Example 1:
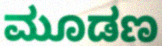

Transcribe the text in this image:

ಮೂಡಣ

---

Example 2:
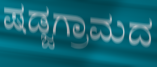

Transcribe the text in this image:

ಷಡ್ಜಗ್ರಾಮದ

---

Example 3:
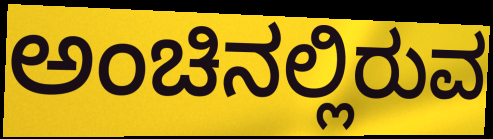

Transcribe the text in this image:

ಅಂಚಿನಲ್ಲಿರುವ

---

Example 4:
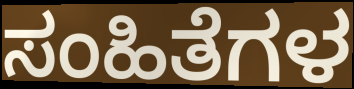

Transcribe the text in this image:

ಸಂಹಿತೆಗಳ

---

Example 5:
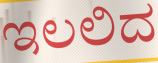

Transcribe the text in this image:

ಇಲಲಿದ